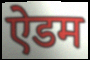
ऐडम